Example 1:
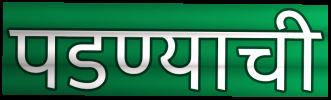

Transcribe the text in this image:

पडण्याची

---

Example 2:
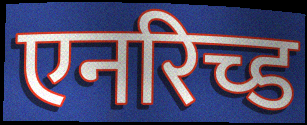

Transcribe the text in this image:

एनरिच्ड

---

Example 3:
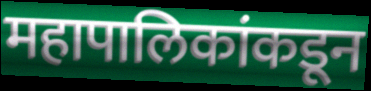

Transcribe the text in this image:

महापालिकांकडून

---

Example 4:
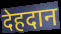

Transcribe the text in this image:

देहदान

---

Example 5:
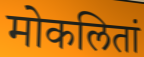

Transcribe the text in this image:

मोकलितां